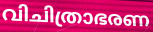
വിചിത്രാഭരണ